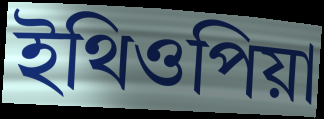
ইথিওপিয়া